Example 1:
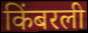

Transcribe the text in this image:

किंबरली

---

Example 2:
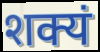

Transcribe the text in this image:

शक्यं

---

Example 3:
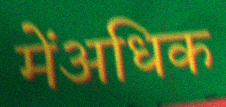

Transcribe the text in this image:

मेंअधिक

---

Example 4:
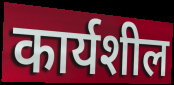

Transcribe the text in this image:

कार्यशील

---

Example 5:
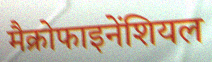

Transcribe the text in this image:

मैक्रोफाइनेंशियल